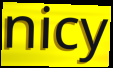
nicy